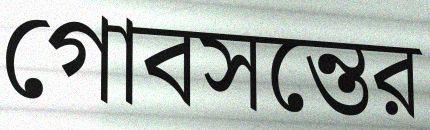
গোবসন্তের